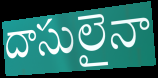
దాసులైనా